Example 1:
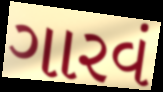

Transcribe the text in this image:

ગારવં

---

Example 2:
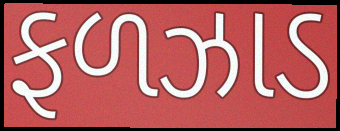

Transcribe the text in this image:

ફળઝાડ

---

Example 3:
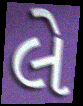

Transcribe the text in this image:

લે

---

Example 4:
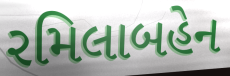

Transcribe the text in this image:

રમિલાબહેન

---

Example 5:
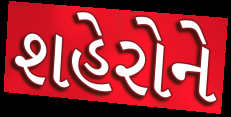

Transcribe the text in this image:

શહેરોને